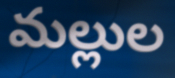
మల్లుల